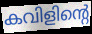
കവിളിന്റെ